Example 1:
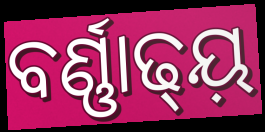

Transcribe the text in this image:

ବର୍ଣ୍ଣାଢ୍ୟ଼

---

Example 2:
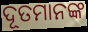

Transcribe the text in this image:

ଦୂତମାନଙ୍କ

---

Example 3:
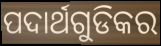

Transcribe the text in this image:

ପଦାର୍ଥଗୁଡିକର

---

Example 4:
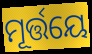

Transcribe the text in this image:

ମୂର୍ତ୍ତୟେ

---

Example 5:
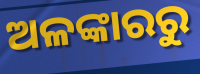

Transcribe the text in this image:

ଅଳଙ୍କାରରୁ